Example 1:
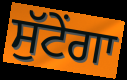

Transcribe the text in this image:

ਸੁੱਟੇਂਗਾ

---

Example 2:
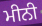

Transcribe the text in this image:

ਮੀਨੀ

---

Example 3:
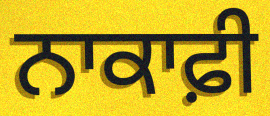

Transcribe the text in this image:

ਨਾਕਾਫ਼ੀ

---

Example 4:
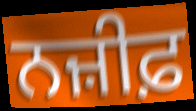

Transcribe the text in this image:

ਨਜ਼ੀਫ਼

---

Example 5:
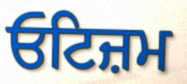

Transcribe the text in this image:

ਓਟਿਜ਼ਮ